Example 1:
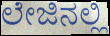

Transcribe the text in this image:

ಲೇಜಿನಲ್ಲಿ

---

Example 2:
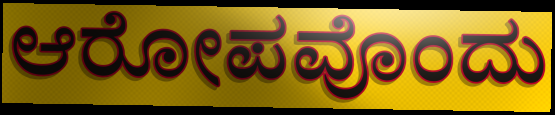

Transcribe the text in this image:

ಆರೋಪವೊಂದು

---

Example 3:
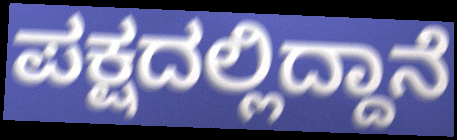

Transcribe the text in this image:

ಪಕ್ಷದಲ್ಲಿದ್ದಾನೆ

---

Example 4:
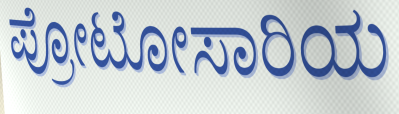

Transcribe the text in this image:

ಪ್ರೋಟೋಸಾರಿಯ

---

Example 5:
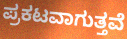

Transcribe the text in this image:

ಪ್ರಕಟವಾಗುತ್ತವೆ